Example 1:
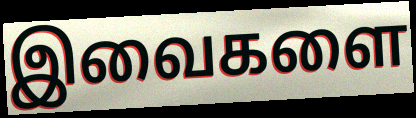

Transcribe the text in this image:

இவைகளை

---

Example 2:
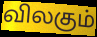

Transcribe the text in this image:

விலகும்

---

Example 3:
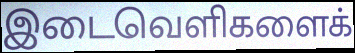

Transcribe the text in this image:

இடைவெளிகளைக்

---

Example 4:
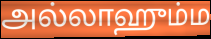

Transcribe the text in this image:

அல்லாஹும்ம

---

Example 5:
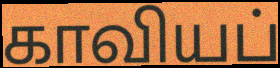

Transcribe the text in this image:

காவியப்